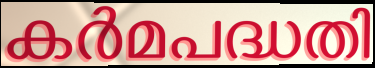
കർമപദ്ധതി